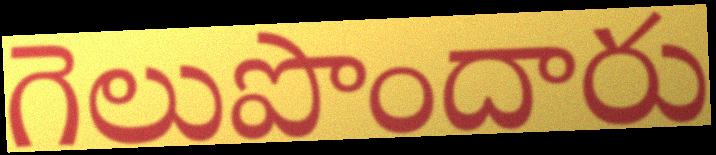
గెలుపొందారు